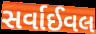
સર્વાઈવલ